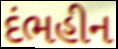
દંભહીન